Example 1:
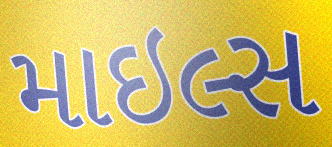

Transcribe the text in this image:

માઇલ્સ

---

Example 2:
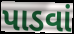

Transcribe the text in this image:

પાડવાં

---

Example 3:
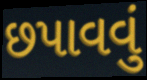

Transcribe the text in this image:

છપાવવું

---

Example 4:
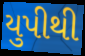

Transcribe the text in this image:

યુપીથી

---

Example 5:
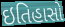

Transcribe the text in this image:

ઇતિહાસો